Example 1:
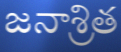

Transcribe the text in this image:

జనాశ్రిత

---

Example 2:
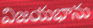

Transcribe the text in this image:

విజయభాను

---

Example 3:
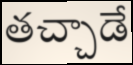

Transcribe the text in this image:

తచ్చాడే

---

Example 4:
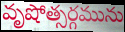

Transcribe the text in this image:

వృషోత్సర్గమును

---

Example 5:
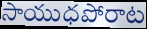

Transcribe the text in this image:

సాయుధపోరాట